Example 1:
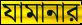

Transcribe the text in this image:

যামানার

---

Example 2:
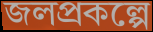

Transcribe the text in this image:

জলপ্রকল্পে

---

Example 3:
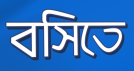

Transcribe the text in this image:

বসিতে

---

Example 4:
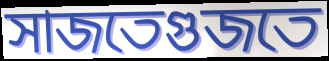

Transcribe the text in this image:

সাজতেগুজতে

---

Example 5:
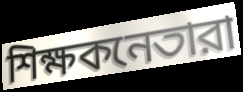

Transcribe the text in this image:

শিক্ষকনেতারা